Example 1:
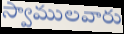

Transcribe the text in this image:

స్వాములవారు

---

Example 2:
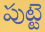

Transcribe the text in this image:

పుట్టె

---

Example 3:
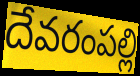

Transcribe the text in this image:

దేవరంపల్లి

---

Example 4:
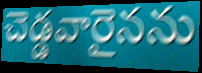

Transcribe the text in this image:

చెడ్డవారైనను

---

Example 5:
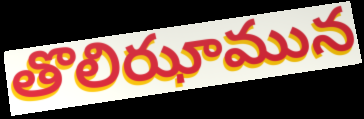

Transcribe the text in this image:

తొలిఝామున